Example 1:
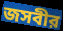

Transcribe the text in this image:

জসবীর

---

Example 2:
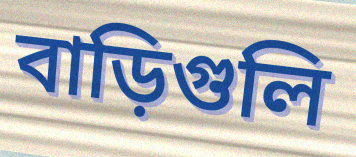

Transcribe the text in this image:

বাড়িগুলি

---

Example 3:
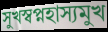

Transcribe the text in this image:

সুখস্বপ্নহাস্যমুখ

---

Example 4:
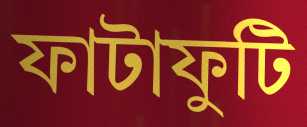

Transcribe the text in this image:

ফাটাফুটি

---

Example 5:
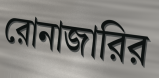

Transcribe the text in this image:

রোনাজারির